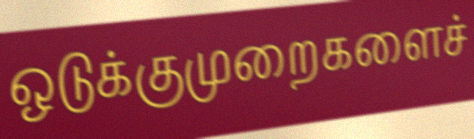
ஒடுக்குமுறைகளைச்